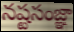
నష్టసంజ్ఞా